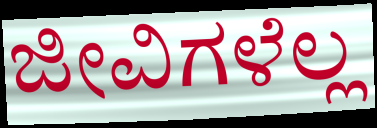
ಜೀವಿಗಳೆಲ್ಲ